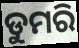
ଡୁମରି